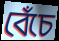
বেঁচে